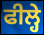
ਫੀਲ੍ਹੇ